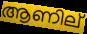
ആണില്